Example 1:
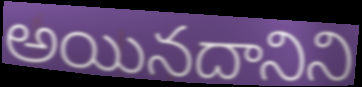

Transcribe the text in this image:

అయినదానిని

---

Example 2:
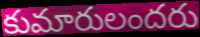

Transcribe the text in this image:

కుమారులందరు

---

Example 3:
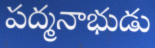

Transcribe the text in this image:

పద్మనాభుడు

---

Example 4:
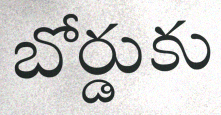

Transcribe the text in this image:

బోర్డుకు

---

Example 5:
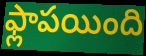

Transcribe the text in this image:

ఫ్లాపయింది